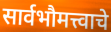
सार्वभौमत्त्वाचे